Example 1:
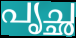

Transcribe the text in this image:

പൃച്ഛ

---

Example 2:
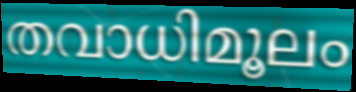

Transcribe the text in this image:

തവാധിമൂലം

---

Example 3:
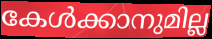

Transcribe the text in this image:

കേൾക്കാനുമില്ല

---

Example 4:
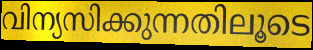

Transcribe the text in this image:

വിന്യസിക്കുന്നതിലൂടെ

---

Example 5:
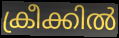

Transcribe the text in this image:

ക്രീക്കിൽ